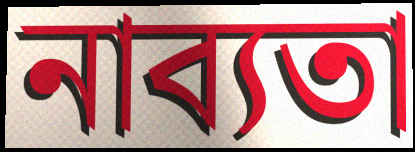
নাব্যতা